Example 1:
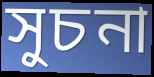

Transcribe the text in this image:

সুচনা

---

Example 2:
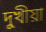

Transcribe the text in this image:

দুখীয়া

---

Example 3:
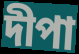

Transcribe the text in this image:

দীপা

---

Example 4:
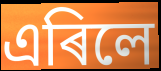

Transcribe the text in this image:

এৰিলে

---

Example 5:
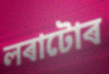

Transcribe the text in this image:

লৰাটোৰ